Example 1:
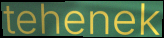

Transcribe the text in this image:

tehenek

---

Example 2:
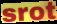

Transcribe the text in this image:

srot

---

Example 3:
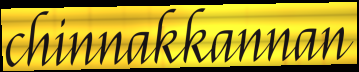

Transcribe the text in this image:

chinnakkannan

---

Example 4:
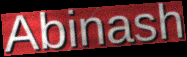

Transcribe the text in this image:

Abinash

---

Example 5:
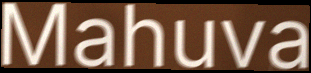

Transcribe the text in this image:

Mahuva